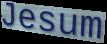
Jesum